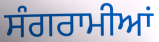
ਸੰਗਰਾਮੀਆਂ